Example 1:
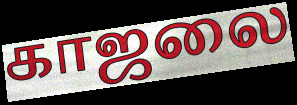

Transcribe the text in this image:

காஜலை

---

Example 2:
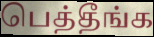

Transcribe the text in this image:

பெத்தீங்க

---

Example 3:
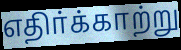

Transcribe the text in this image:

எதிர்க்காற்று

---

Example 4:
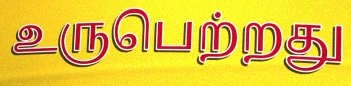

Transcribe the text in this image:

உருபெற்றது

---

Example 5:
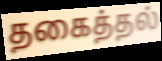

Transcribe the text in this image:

தகைத்தல்